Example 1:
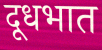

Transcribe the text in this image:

दूधभात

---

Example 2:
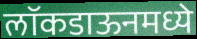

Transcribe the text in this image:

लॉकडाऊनमध्ये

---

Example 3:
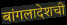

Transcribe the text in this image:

बांगलादेशची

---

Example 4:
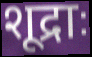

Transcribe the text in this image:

शूद्राः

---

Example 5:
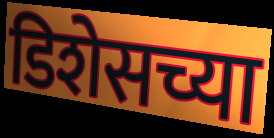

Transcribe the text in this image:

डिशेसच्या